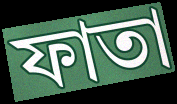
ফাতা